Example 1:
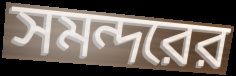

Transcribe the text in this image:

সমন্দরের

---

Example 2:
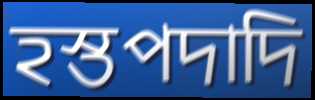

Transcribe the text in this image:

হস্তপদাদি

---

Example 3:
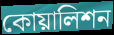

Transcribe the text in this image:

কোয়ালিশন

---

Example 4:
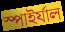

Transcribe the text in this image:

স্পাইর্যাল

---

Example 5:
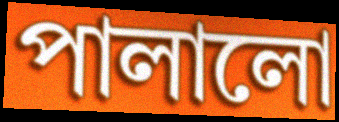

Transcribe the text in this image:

পালালো